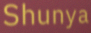
Shunya